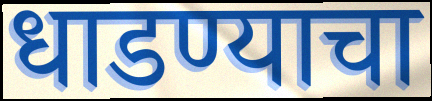
धाडण्याचा